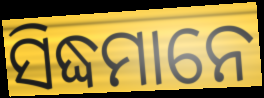
ସିଦ୍ଧମାନେ